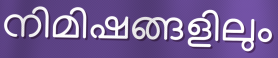
നിമിഷങ്ങളിലും